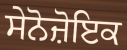
ਸੇਨੋਜ਼ੋਇਕ